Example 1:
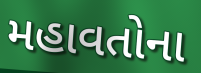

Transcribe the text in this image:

મહાવતોના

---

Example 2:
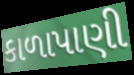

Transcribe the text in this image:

કાળાપાણી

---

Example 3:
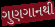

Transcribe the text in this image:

ગુણગાનથી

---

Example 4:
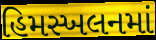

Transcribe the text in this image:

હિમસ્ખલનમાં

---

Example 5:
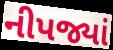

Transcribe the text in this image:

નીપજ્યાં